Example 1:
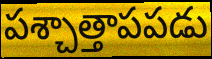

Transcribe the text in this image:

పశ్చాత్తాపపడు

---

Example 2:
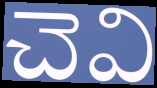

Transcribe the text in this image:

చెవి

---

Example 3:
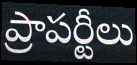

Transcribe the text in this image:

ప్రాపర్టీలు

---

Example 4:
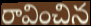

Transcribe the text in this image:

రావించిన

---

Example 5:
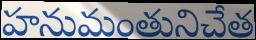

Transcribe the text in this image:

హనుమంతునిచేత